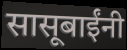
सासूबाईंनी